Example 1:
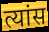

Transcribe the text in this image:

त्यांस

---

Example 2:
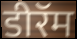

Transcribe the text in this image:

डीरॅम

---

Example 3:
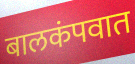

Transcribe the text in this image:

बालकंपवात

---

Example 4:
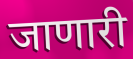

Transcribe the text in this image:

जाणारी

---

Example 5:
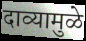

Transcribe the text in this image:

दाव्यामुळे